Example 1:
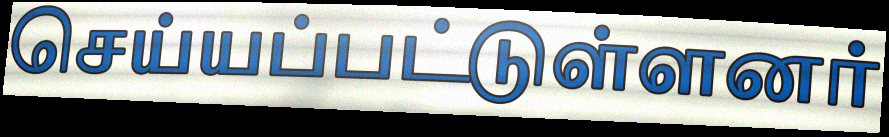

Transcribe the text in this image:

செய்யப்பட்டுள்ளனர்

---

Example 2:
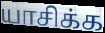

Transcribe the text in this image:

யாசிக்க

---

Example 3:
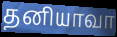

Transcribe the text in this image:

தனியாவா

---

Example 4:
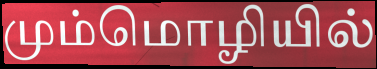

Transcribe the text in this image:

மும்மொழியில்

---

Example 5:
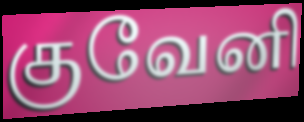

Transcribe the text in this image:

குவேனி